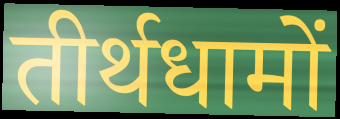
तीर्थधामों